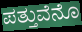
ಪತ್ತುವೆನೊ